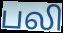
பலி